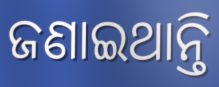
ଜଣାଇଥାନ୍ତି